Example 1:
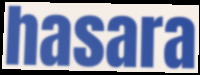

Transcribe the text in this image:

hasara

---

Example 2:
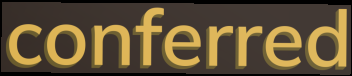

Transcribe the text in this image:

conferred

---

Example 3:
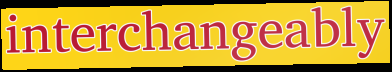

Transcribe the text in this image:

interchangeably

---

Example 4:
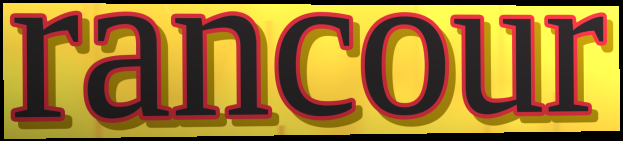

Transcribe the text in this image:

rancour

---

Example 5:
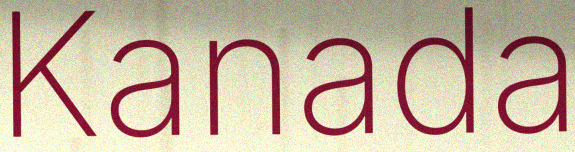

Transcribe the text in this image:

Kanada